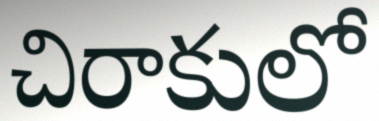
చిరాకులో